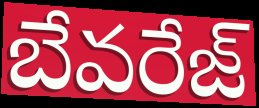
బేవరేజ్